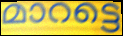
മാറട്ടെ